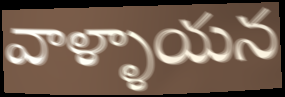
వాళ్ళాయన